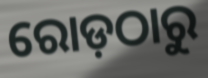
ରୋଡ଼ଠାରୁ